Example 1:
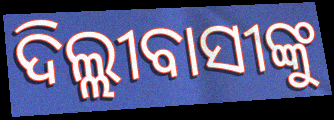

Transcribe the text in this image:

ଦିଲ୍ଲୀବାସୀଙ୍କୁ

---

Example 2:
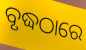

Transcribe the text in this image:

ବୃଦ୍ଧଠାରେ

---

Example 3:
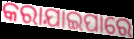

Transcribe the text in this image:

କରାଯାଇପାରେ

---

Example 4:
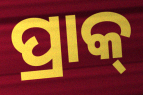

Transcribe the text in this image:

ପ୍ରାକ୍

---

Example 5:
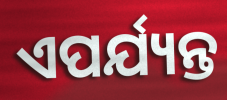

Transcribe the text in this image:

ଏପର୍ଯ୍ୟନ୍ତ